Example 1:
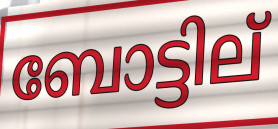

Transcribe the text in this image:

ബോട്ടില്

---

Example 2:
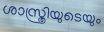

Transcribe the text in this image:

ശാസ്ത്രിയുടെയും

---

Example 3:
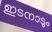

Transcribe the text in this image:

ഇടനാടും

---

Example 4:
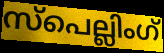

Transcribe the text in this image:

സ്പെല്ലിംഗ്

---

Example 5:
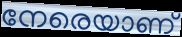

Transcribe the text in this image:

നേരെയാണ്